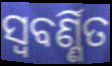
ସ୍ୱବର୍ଣ୍ଣିତ